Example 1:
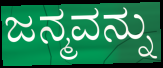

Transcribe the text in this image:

ಜನ್ಮವನ್ನು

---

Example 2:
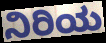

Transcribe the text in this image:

ನಿರಿಯ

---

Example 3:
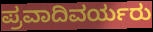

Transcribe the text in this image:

ಪ್ರವಾದಿವರ್ಯರು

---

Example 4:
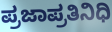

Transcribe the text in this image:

ಪ್ರಜಾಪ್ರತಿನಿಧಿ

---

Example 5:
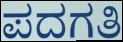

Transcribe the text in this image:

ಪದಗತಿ